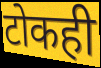
टोकही